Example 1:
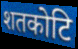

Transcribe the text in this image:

शतकोटि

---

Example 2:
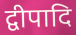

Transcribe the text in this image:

द्वीपादि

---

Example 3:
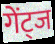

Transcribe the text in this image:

गेंट्ज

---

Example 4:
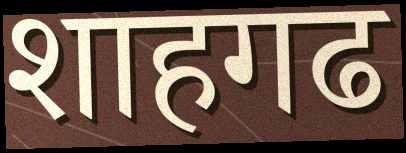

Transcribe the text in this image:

शाहगढ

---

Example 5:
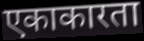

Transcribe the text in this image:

एकाकारता